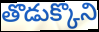
తొడుక్కొని